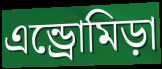
এন্ড্রোমিড়া